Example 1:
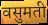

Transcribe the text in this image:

वसुमती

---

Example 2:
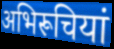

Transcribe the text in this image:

अभिरूचियां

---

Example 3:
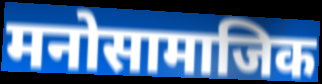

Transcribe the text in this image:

मनोसामाजिक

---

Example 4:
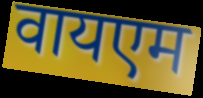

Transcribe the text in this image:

वायएम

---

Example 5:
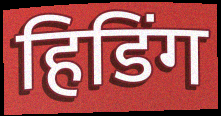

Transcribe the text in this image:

हिडिंग